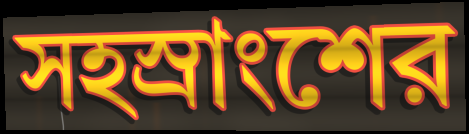
সহস্রাংশের